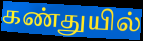
கண்துயில்